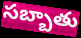
సబ్బాతు